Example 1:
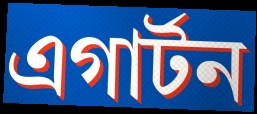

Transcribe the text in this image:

এগার্টন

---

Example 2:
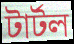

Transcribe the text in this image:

টার্টল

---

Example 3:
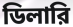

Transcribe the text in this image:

ডিলারি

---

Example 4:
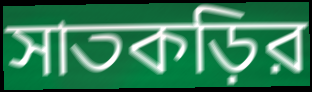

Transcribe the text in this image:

সাতকড়ির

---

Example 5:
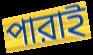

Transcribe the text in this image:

পারাই